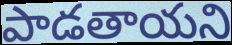
పాడతాయని